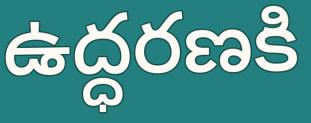
ఉద్ధరణకి